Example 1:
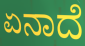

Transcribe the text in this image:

ಏನಾದೆ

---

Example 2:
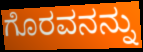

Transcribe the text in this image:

ಗೊರವನನ್ನು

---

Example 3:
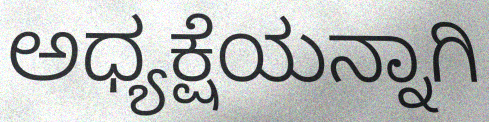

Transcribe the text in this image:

ಅಧ್ಯಕ್ಷೆಯನ್ನಾಗಿ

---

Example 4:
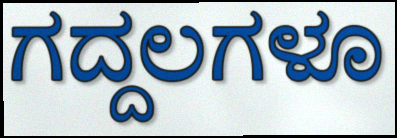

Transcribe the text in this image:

ಗದ್ದಲಗಳೂ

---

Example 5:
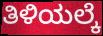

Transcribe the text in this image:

ತಿಳಿಯಲ್ಕೆ